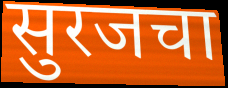
सुरजचा